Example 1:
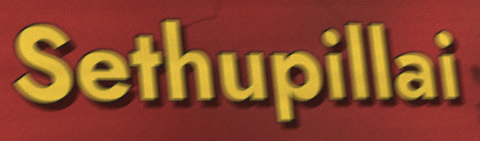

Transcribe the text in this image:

Sethupillai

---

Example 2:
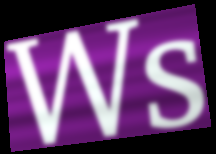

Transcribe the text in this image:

Ws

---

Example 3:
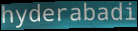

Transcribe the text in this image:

hyderabadi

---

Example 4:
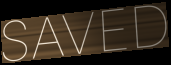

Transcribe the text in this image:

SAVED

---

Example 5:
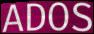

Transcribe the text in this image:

ADOS